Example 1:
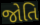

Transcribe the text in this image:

જોતિ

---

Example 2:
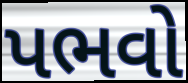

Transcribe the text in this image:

પભવો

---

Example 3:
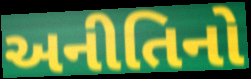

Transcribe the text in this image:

અનીતિનો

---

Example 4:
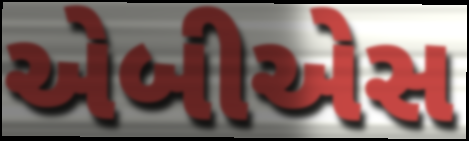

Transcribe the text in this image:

એબીએસ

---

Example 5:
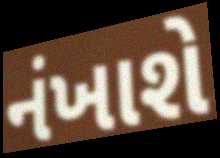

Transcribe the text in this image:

નંખાશે